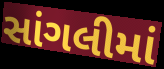
સાંગલીમાં